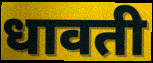
धावती